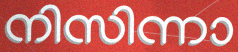
നിസിന്നാ